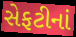
સેફટીનાં